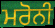
ਮਰੋਨੀ